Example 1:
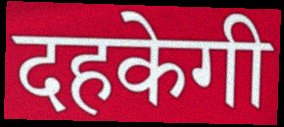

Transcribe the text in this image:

दहकेगी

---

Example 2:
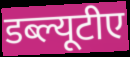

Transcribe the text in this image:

डब्ल्यूटीए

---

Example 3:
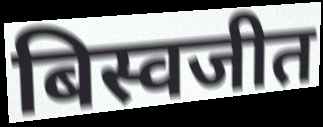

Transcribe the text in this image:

बिस्वजीत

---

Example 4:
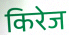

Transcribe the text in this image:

किरेज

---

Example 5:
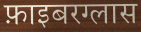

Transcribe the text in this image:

फ़ाइबरग्लास